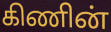
கிணின்